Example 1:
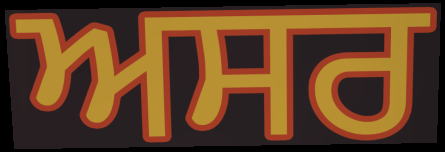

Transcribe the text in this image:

ਅਸਰ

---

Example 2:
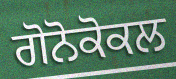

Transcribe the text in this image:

ਗੋਨੋਕੋਕਲ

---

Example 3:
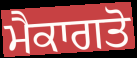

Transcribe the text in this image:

ਮੈਕਾਗਤੋ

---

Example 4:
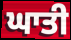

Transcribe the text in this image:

ਘਾਤੀ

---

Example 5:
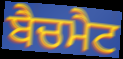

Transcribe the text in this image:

ਬੈਚਮੈਟ